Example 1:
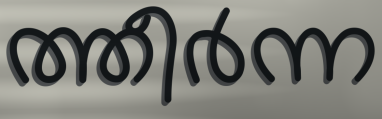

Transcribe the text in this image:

ത്തീർന്ന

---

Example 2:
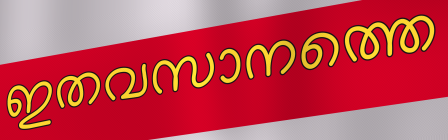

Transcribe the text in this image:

ഇതവസാനത്തെ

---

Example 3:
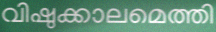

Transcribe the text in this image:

വിഷുക്കാലമെത്തി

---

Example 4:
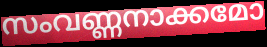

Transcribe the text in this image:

സംവണ്ണനാക്കമോ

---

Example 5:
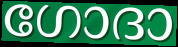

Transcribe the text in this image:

ഗോദാ